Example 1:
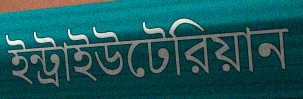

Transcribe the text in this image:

ইন্ট্রাইউটেরিয়ান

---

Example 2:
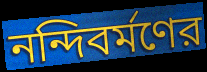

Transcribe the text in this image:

নন্দিবর্মণের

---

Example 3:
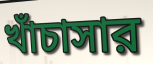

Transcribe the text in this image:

খাঁচাসার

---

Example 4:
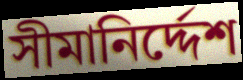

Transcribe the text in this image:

সীমানির্দ্দেশ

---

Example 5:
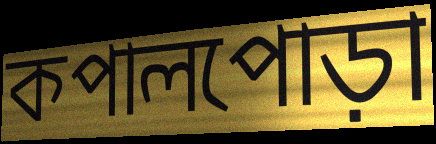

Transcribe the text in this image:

কপালপোড়া